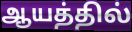
ஆயத்தில்